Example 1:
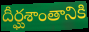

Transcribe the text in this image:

దీర్ఘశాంతానికి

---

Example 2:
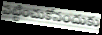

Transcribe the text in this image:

పట్టించుకోనందుకు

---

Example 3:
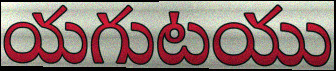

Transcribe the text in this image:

యగుటయు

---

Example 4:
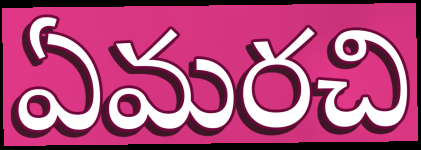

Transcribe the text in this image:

ఏమరచి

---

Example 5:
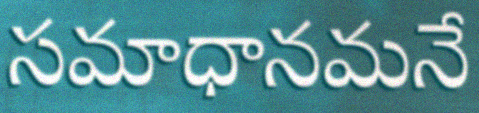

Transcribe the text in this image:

సమాధానమనే